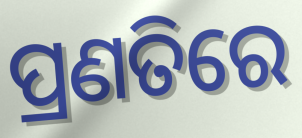
ପ୍ରଣତିରେ